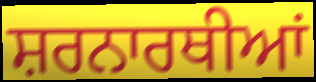
ਸ਼ਰਨਾਰਥੀਆਂ